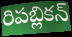
రిపబ్లికన్